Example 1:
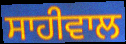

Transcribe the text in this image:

ਸਾਹੀਵਾਲ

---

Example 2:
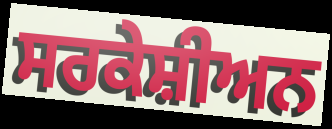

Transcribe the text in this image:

ਸਰਕੇਸ਼ੀਅਨ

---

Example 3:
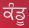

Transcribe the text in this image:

ਕੰਡੂ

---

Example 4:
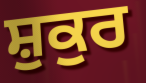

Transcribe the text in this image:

ਸ਼ੁਕੁਰ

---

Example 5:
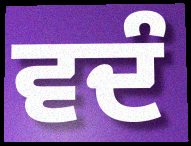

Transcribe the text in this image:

ਵਦੰ